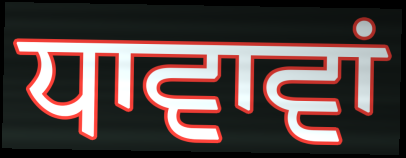
ਧਾਵਾਵਾਂ